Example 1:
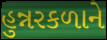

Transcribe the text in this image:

હુન્નરકળાને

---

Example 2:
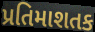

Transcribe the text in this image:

પ્રતિમાશતક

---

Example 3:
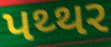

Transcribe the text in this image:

પથ્થર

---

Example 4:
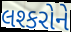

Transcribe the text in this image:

લશ્કરોને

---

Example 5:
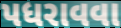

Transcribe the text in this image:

પધરાવવા